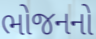
ભોજનનો